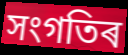
সংগতিৰ